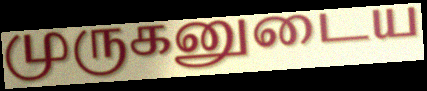
முருகனுடைய